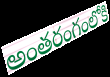
అంతరంగంలోకి